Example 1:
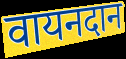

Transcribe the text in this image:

वायनदान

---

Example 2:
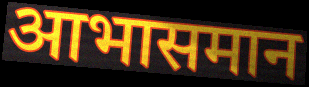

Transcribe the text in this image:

आभासमान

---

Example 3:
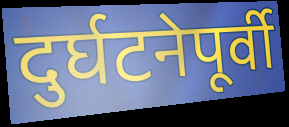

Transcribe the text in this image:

दुर्घटनेपूर्वी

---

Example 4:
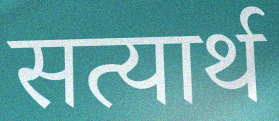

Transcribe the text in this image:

सत्यार्थ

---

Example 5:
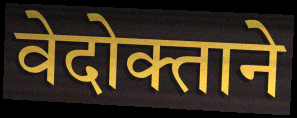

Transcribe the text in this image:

वेदोक्ताने